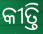
କୀତ୍ତି